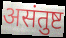
असंतुष्ट